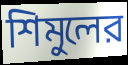
শিমুলের